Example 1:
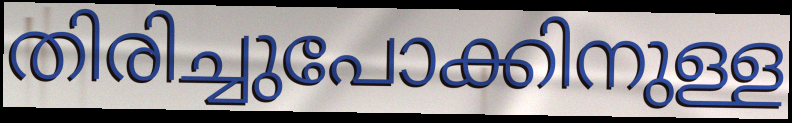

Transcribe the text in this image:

തിരിച്ചുപോക്കിനുള്ള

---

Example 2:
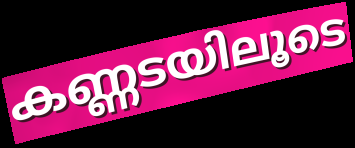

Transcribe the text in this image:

കണ്ണടയിലൂടെ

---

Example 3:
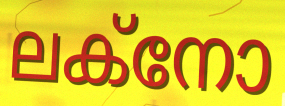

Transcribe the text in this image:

ലക്നോ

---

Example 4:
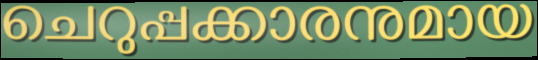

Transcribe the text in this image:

ചെറുപ്പക്കാരനുമായ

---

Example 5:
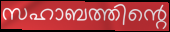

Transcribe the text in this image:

സഹാബത്തിന്റെ